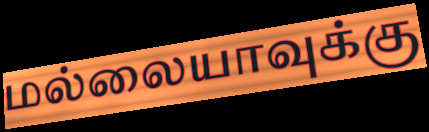
மல்லையாவுக்கு